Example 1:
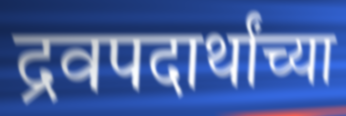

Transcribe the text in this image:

द्रवपदार्थांच्या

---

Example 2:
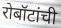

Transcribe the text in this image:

रोबॉटांची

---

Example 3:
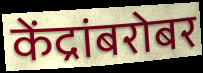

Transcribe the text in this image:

केंद्रांबरोबर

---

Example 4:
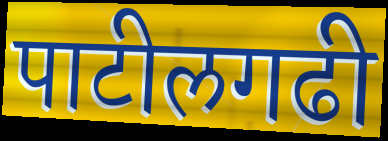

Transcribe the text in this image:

पाटीलगढी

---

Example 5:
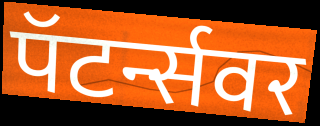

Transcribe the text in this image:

पॅटर्न्सवर